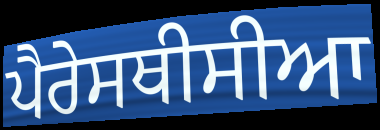
ਪੈਰੇਸਥੀਸੀਆ